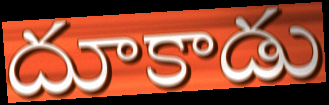
దూకాడు